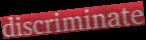
discriminate